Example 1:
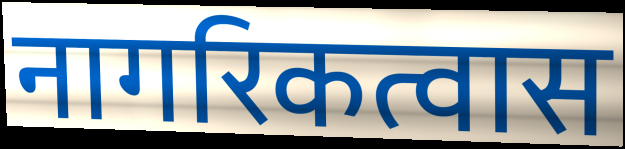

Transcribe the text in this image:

नागरिकत्वास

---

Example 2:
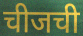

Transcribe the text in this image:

चीजची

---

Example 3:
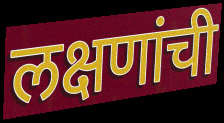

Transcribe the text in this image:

लक्षणांची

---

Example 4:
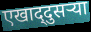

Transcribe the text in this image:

एखाद्‌दुसऱ्या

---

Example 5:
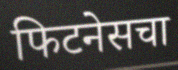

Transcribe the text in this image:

फिटनेसचा